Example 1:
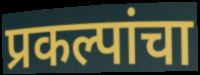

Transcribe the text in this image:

प्रकल्पांचा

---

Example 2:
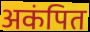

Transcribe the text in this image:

अकंपित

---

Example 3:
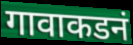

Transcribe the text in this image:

गावाकडनं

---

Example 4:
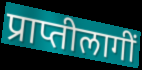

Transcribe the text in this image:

प्राप्तीलागीं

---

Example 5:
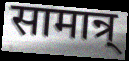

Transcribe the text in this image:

सामान्र्